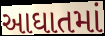
આઘાતમાં